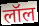
लॉल